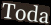
Toda